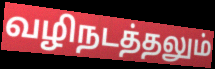
வழிநடத்தலும்